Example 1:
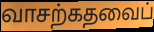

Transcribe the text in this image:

வாசற்கதவைப்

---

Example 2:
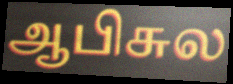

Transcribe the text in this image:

ஆபிசுல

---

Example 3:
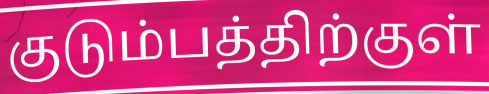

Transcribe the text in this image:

குடும்பத்திற்குள்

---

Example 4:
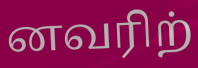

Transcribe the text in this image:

னவரிற்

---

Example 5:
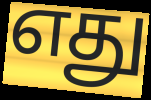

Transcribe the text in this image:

எது